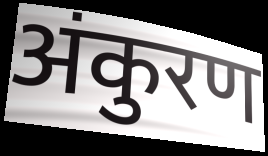
अंकुरण